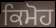
ਕਿਮੋਹ